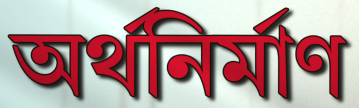
অর্থনির্মাণ